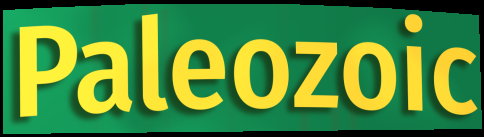
Paleozoic